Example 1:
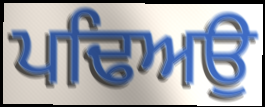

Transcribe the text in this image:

ਪਢਿਅਉ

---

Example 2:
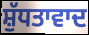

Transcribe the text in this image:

ਸ਼ੁੱਧਤਾਵਾਦ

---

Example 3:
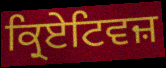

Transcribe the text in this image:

ਕ੍ਰਿਏਟਿਵਜ਼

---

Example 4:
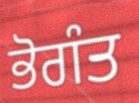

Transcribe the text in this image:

ਭੋਗੰਤ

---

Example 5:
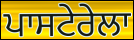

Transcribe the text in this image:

ਪਾਸਟੇਰੇਲਾ